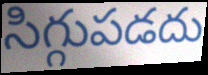
సిగ్గుపడదు